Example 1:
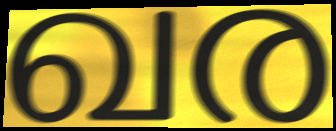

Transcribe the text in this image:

ഖര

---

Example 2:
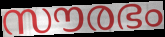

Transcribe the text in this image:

സൗരഭം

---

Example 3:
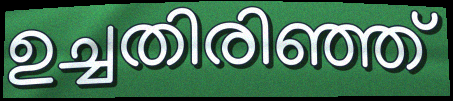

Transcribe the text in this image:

ഉച്ചതിരിഞ്ഞ്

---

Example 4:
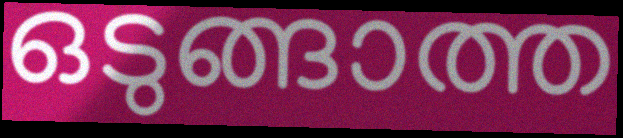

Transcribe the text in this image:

ഒടുങ്ങാത്ത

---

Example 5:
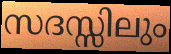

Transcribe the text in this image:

സദസ്സിലും